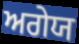
ਅਗੇਯ